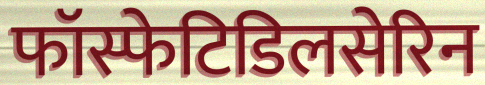
फॉस्फेटिडिलसेरिन